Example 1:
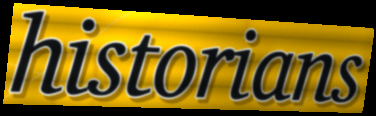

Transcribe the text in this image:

historians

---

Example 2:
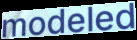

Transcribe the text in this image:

modeled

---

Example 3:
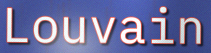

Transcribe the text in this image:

Louvain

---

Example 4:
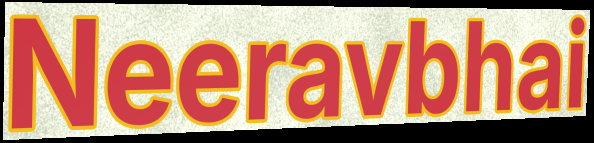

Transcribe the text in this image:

Neeravbhai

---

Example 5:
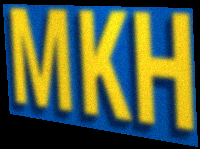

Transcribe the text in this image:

MKH